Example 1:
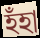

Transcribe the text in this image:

হঁহা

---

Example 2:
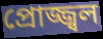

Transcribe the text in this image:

প্ৰোজ্জ্বল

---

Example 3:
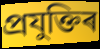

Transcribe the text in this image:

প্ৰযুক্তিৰ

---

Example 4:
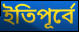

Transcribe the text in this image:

ইতিপূৰ্বে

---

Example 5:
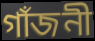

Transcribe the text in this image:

গাঁজনী